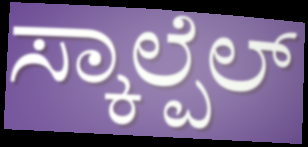
ಸ್ಕಾಲ್ಪೆಲ್